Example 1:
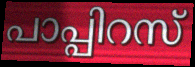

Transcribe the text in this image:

പാപ്പിറസ്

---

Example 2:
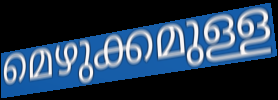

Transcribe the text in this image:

മെഴുക്കമുള്ള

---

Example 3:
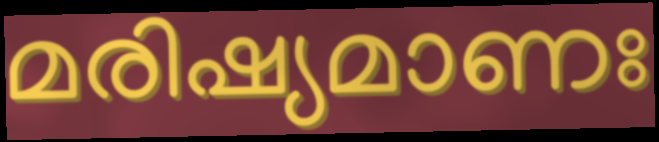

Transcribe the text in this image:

മരിഷ്യമാണഃ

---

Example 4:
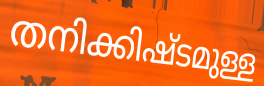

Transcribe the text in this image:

തനിക്കിഷ്ടമുള്ള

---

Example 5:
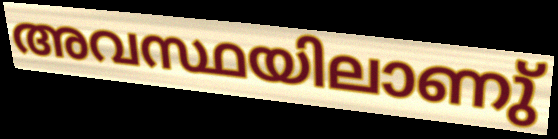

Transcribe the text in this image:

അവസ്ഥയിലാണു്